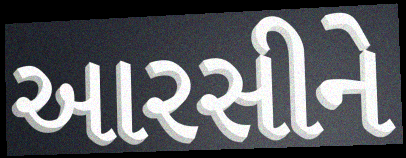
આરસીને